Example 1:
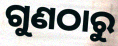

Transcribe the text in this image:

ଗୁଣଠାରୁ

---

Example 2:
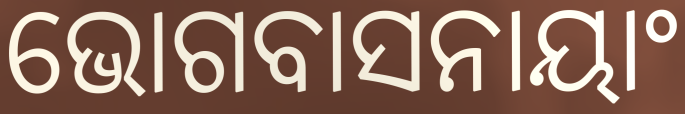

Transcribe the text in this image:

ଭୋଗବାସନାୟାଂ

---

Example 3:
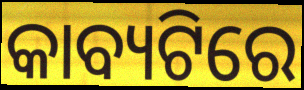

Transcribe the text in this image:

କାବ୍ୟଟିରେ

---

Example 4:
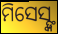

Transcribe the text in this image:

ମିସେସ୍ଙ୍କ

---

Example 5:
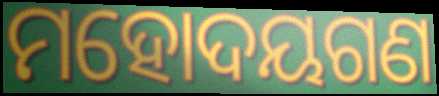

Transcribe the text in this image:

ମହୋଦୟଗଣ